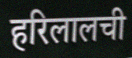
हरिलालची